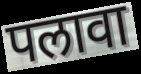
पलावा